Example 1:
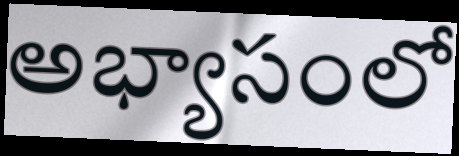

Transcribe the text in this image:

అభ్యాసంలో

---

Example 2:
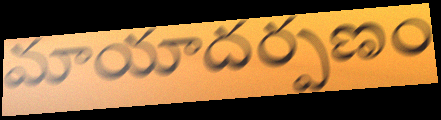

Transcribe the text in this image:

మాయాదర్పణం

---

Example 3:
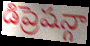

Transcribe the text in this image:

డిప్రెషన్గా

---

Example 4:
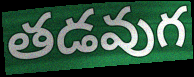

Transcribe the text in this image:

తడవుగ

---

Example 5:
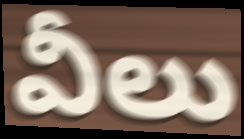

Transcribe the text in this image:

వీలు